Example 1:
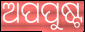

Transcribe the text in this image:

ଅପପୁଷ୍ଟ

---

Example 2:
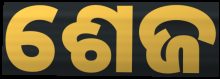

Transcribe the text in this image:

ଶେଜ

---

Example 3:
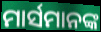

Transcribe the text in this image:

ମାର୍ସମାନଙ୍କ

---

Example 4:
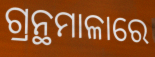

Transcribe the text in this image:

ଗ୍ରନ୍ଥମାଳାରେ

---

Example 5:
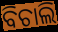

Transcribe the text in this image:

ବିଚାଲି